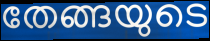
തേങ്ങയുടെ